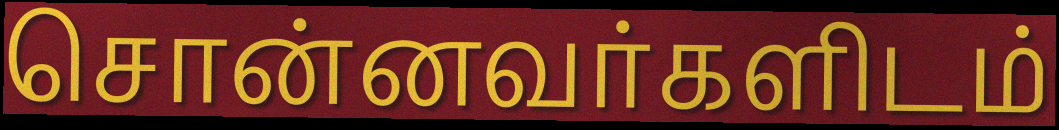
சொன்னவர்களிடம்